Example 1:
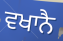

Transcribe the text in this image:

ਵਖਾਨੈ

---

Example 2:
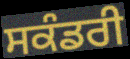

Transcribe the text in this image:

ਸਕੰਡਰੀ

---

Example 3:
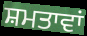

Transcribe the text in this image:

ਸ਼ਮਤਾਵਾਂ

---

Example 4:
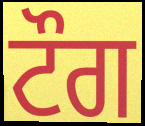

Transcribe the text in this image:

ਟੌਗ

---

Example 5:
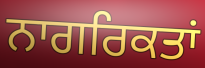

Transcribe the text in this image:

ਨਾਗਰਿਕਤਾਂ